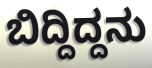
ಬಿದ್ದಿದ್ದನು